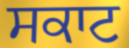
ਸਕਾਟ